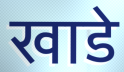
खाडे